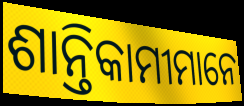
ଶାନ୍ତିକାମୀମାନେ